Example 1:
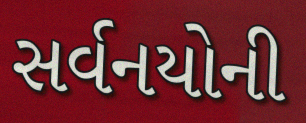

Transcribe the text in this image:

સર્વનયોની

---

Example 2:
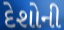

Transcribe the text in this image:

દેશોની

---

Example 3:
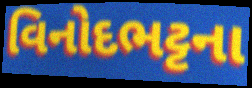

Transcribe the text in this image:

વિનોદભટ્ટના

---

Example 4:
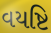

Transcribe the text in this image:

વયષ્ટિ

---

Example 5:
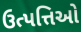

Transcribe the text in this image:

ઉત્પત્તિઓ